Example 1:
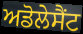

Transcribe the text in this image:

ਅਡੋਲੇਸੈਂਟ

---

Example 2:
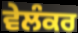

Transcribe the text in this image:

ਵੇਲੰਕਰ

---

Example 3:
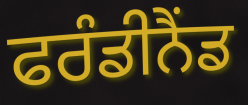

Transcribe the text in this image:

ਫਰੰਡੀਨੈਂਡ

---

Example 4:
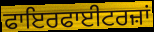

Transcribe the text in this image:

ਫਾਇਰਫਾਈਟਰਜ਼ਾਂ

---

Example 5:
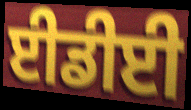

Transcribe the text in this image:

ਈਡੀਈ